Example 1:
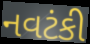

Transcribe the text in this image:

નવટંકી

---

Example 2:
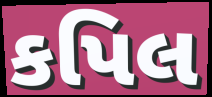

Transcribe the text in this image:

કપિલ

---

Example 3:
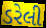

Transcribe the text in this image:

ડરેલી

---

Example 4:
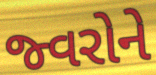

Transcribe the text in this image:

જ્વરોને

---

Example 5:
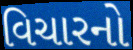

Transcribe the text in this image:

વિચારનો